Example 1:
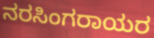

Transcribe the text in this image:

ನರಸಿಂಗರಾಯರ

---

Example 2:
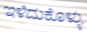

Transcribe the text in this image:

ಇಳಿದುಕೊಳ್ಳು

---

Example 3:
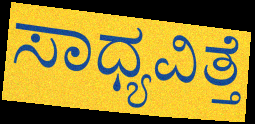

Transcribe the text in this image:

ಸಾಧ್ಯವಿತ್ತೆ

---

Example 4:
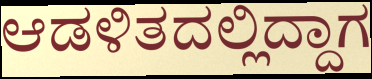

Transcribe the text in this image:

ಆಡಳಿತದಲ್ಲಿದ್ದಾಗ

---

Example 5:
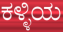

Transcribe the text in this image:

ಕಳ್ಳಿಯ